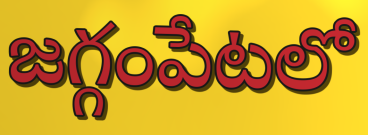
జగ్గంపేటలో